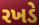
રખડે